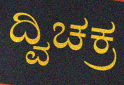
ದ್ವಿಚಕ್ರ